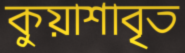
কুয়াশাবৃত